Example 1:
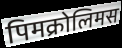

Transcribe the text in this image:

पिमक्रोलिमस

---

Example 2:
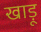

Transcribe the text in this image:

खाड़ू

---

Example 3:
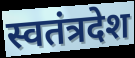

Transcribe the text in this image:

स्वतंत्रदेश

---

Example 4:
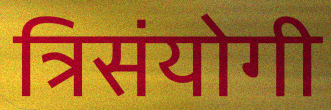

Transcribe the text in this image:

त्रिसंयोगी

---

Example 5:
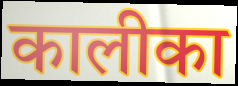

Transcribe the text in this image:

कालीका